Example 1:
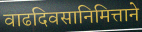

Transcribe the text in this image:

वाढदिवसानिमित्ताने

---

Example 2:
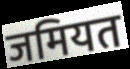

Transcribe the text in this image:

जमियत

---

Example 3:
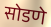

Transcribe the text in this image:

सोडणे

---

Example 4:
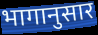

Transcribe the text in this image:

भागानुसार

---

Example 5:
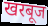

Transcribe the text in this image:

खरबूज